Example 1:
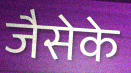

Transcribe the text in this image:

जैसेके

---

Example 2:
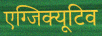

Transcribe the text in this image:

एग्जिक्यूटिव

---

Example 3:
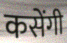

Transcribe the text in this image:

कसेंगी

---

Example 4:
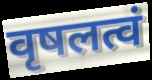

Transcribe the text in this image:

वृषलत्वं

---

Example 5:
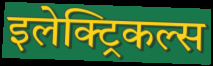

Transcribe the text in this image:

इलेक्ट्रिकल्स